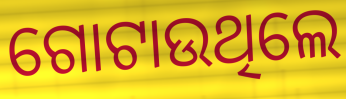
ଗୋଟାଉଥିଲେ